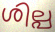
ശില്പ